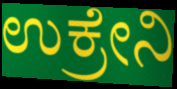
ಉಕ್ರೇನಿ